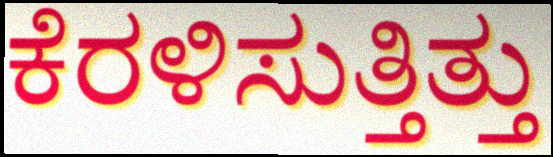
ಕೆರಳಿಸುತ್ತಿತ್ತು